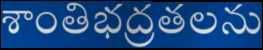
శాంతిభద్రతలను